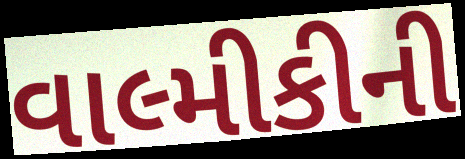
વાલ્મીકીની